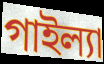
গাইল্যা